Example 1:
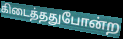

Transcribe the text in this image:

கிடைத்ததுபோன்ற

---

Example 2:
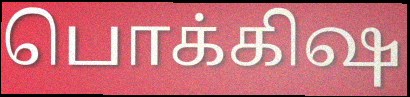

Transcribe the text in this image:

பொக்கிஷ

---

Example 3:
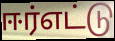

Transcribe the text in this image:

ஈர்எட்டு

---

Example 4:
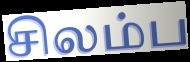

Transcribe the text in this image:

சிலம்ப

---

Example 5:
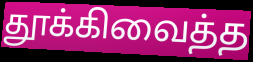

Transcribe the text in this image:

தூக்கிவைத்த